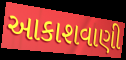
આકાશવાણી